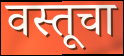
वस्तूचा